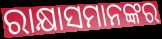
ରାକ୍ଷାସମାନଙ୍କର